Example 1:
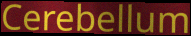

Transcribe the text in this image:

Cerebellum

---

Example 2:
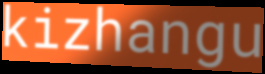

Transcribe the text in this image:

kizhangu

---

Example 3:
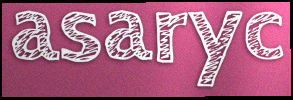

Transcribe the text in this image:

asaryc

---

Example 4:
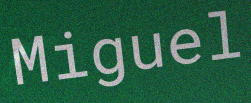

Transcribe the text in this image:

Miguel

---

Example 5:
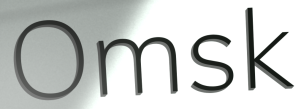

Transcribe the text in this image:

Omsk